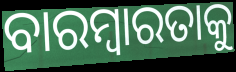
ବାରମ୍ବାରତାକୁ